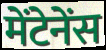
मेंटेनेंस